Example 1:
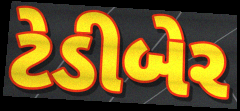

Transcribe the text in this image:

ટેડીબેર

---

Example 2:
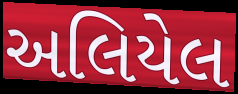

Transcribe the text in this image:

અલિયેલ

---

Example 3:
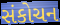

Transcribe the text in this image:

સંકોચન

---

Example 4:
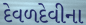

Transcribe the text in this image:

દેવળદેવીના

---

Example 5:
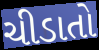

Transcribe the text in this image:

ચીડાતો